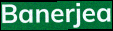
Banerjea